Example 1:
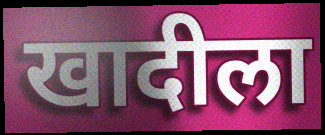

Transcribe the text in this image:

खादीला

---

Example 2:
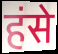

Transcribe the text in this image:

हंसे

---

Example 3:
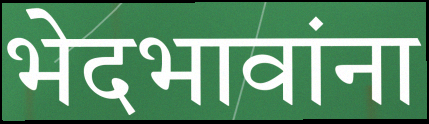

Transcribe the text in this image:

भेदभावांना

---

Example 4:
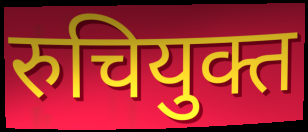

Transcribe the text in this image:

रुचियुक्त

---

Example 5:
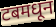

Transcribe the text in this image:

टबमधून